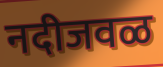
नदीजवळ